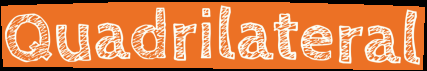
Quadrilateral